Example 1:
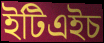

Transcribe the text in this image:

ইটিএইচ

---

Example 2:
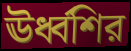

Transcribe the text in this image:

ঊর্ধ্বশির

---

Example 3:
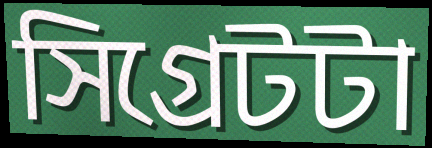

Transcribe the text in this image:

সিগ্রেটটা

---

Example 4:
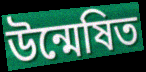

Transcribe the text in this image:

উন্মেষিত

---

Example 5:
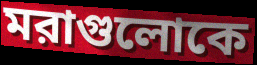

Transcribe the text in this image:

মরাগুলোকে